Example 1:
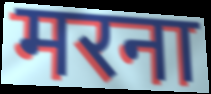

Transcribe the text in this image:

मरना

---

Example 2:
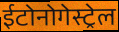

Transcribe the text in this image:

ईटोनोगेस्ट्रेल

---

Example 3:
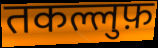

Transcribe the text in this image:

तकल्लुफ़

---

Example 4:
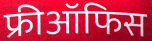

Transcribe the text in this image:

फ्रीऑफिस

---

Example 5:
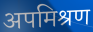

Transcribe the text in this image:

अपमिश्रण